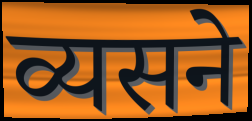
व्यसने